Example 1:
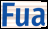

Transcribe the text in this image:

Fua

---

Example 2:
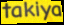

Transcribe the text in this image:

takiya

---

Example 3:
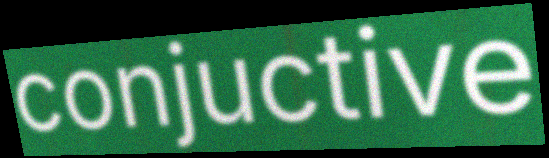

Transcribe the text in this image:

conjuctive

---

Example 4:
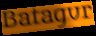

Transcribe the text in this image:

Batagur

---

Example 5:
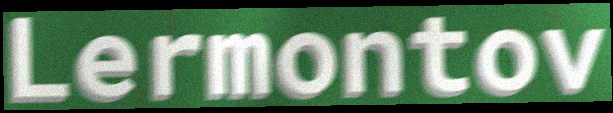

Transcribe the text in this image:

Lermontov